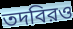
তদবিরও